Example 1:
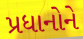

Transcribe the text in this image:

પ્રધાનોને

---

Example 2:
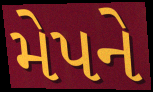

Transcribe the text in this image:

મેપને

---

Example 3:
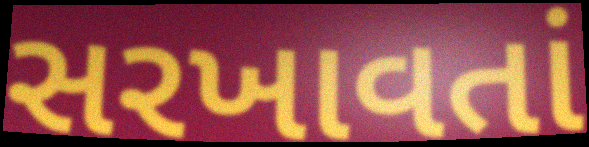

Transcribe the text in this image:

સરખાવતાં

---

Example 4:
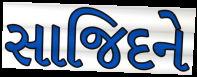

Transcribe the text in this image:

સાજિદને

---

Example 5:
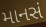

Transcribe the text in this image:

માનસં